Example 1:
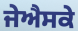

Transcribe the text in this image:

ਜੇਐਸਕੇ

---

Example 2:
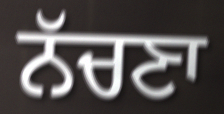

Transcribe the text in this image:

ਨੱਚਣਾ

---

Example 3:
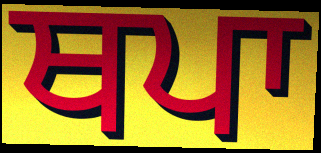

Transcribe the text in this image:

ਥਪਾ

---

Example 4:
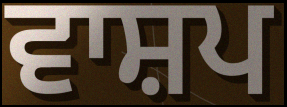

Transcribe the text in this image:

ਵਾਸ਼ਪ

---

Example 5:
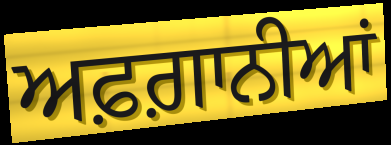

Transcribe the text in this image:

ਅਫ਼ਗ਼ਾਨੀਆਂ